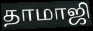
தாமாஜி